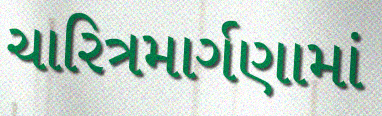
ચારિત્રમાર્ગણામાં